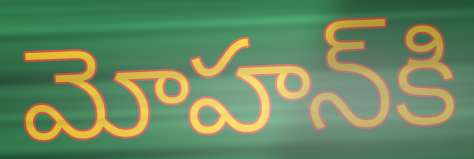
మోహన్‌కి